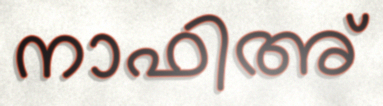
നാഫിഅ്